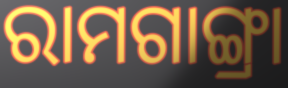
ରାମଗାଙ୍ଗ୍ରା